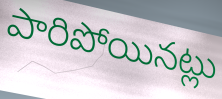
పారిపోయినట్లు